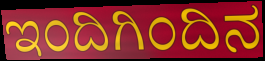
ಇಂದಿಗಿಂದಿನ